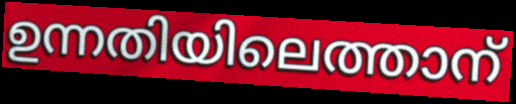
ഉന്നതിയിലെത്താന്